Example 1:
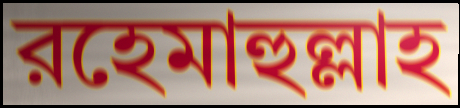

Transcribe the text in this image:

রহেমাহুল্লাহ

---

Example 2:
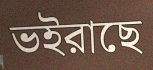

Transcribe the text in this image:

ভইরাছে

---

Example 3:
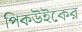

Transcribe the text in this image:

পিকউইকের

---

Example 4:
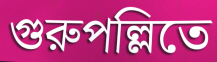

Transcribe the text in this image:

গুরুপল্লিতে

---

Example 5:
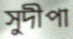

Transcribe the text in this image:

সুদীপা